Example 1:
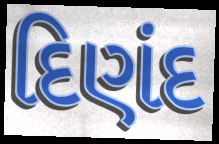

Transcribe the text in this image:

દિણંદ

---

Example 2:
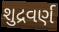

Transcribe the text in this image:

શુદ્રવર્ણ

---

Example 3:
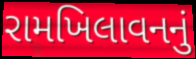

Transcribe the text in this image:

રામખિલાવનનું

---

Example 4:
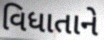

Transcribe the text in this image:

વિધાતાને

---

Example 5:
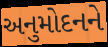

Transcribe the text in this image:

અનુમોદનને